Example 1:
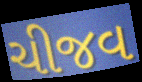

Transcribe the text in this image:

ચીજવ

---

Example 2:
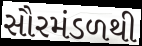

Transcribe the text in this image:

સૌરમંડળથી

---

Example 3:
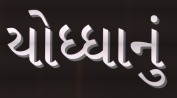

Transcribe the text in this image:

યોધ્ધાનું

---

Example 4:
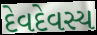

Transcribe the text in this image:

દેવદેવસ્ય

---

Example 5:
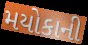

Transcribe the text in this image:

મયોકાની